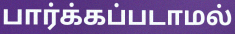
பார்க்கப்படாமல்